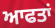
ਆਫਤਾਂ